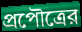
প্রপৌত্রের